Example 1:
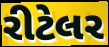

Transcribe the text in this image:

રીટેલર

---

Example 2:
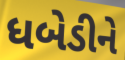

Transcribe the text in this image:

ધબેડીને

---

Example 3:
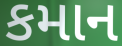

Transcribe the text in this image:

કમાન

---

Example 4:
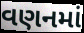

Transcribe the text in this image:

વણનમાં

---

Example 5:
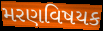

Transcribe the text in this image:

મરણવિષયક